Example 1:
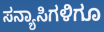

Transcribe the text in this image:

ಸನ್ಯಾಸಿಗಳಿಗೂ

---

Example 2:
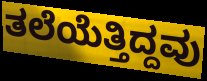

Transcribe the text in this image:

ತಲೆಯೆತ್ತಿದ್ದವು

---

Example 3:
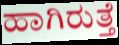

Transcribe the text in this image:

ಹಾಗಿರುತ್ತೆ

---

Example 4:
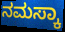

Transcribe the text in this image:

ನಮಸ್ಕಾ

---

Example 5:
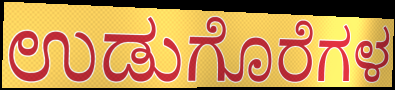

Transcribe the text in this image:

ಉಡುಗೊರೆಗಳ